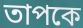
তাপকে